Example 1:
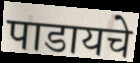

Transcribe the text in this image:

पाडायचे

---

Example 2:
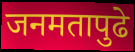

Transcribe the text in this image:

जनमतापुढे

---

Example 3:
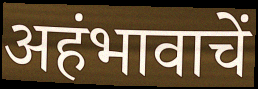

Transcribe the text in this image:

अहंभावाचें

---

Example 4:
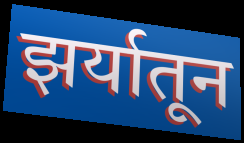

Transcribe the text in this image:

झर्यातून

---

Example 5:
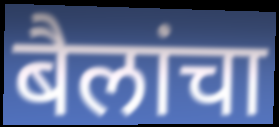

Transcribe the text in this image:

बैलांचा